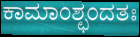
ಕಾಮಾಂಶ್ಛಂದತಃ